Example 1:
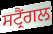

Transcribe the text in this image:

ਸਟ੍ਰੈਂਗਲ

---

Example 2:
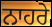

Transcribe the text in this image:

ਨਾਹਰੇ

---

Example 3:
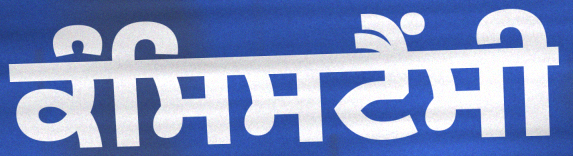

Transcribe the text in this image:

ਕੰਸਿਸਟੈਂਸੀ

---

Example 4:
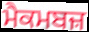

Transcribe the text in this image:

ਮੈਕਮਬਜ਼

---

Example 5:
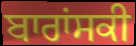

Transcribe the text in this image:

ਬਾਰਾਂਸਕੀ